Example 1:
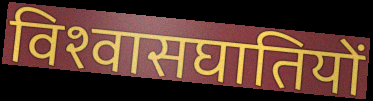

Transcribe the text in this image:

विश्वासघातियों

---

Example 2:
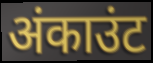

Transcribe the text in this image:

अंकाउंट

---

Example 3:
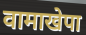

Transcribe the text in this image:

वामाखेपा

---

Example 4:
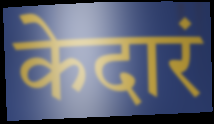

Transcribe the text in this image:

केदारं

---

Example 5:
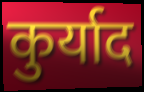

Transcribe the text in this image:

कुर्याद